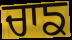
ਚਾਙ